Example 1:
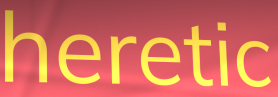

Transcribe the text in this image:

heretic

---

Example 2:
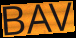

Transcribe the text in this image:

BAV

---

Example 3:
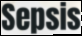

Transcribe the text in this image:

Sepsis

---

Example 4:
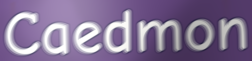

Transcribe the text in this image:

Caedmon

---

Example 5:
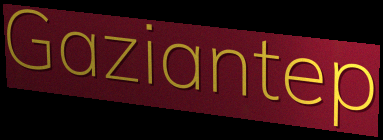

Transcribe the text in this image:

Gaziantep